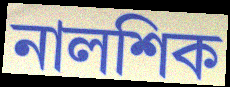
নালশিক